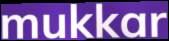
mukkar